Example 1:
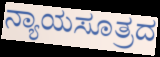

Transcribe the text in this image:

ನ್ಯಾಯಸೂತ್ರದ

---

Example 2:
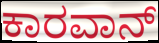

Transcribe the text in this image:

ಕಾರವಾನ್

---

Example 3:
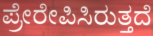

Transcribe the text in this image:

ಪ್ರೇರೇಪಿಸಿರುತ್ತದೆ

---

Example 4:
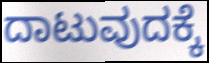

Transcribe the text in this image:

ದಾಟುವುದಕ್ಕೆ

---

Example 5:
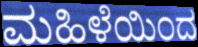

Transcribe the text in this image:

ಮಹಿಳೆಯಿಂದ